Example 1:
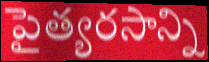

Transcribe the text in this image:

పైత్యరసాన్ని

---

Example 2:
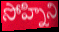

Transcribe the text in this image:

సోహ్నిని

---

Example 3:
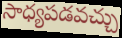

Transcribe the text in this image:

సాధ్యపడవచ్చు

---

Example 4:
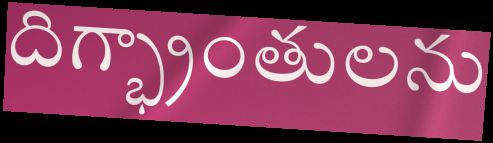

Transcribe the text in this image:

దిగ్భ్రాంతులను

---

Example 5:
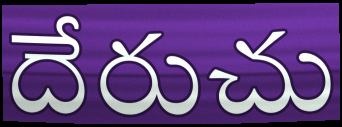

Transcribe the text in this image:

దేరుచు